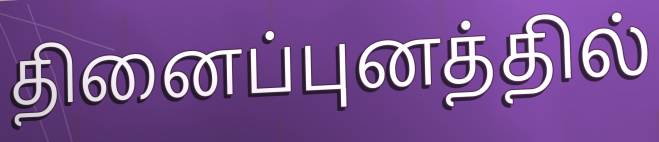
தினைப்புனத்தில்